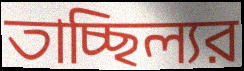
তাচ্ছিল্যর